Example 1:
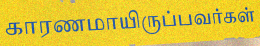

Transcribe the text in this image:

காரணமாயிருப்பவர்கள்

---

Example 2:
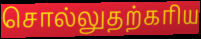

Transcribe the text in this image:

சொல்லுதற்கரிய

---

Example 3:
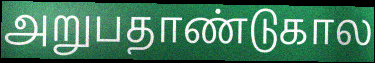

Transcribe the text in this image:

அறுபதாண்டுகால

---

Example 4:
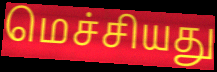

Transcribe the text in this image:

மெச்சியது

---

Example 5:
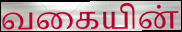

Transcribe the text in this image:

வகையின்